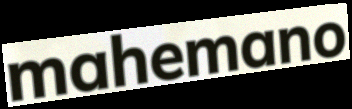
mahemano